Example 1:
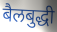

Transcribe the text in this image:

बैलबुद्धी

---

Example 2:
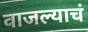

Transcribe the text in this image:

वाजल्याचं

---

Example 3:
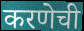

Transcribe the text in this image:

करणेची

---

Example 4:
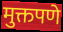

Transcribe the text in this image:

मुक्तपणे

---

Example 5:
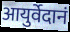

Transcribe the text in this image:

आयुर्वेदानं